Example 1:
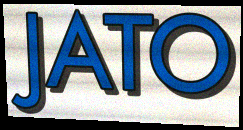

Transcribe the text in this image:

JATO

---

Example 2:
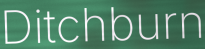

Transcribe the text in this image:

Ditchburn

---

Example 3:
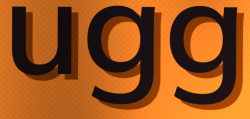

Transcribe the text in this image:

ugg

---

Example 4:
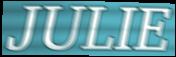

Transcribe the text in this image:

JULIE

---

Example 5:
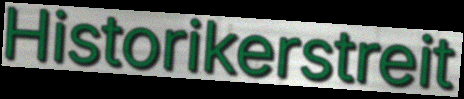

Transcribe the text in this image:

Historikerstreit